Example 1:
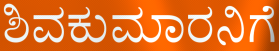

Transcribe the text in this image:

ಶಿವಕುಮಾರನಿಗೆ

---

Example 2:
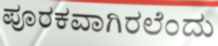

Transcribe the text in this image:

ಪೂರಕವಾಗಿರಲೆಂದು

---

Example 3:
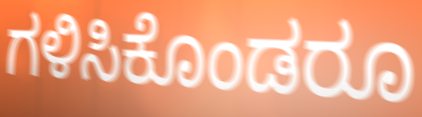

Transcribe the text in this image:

ಗಳಿಸಿಕೊಂಡರೂ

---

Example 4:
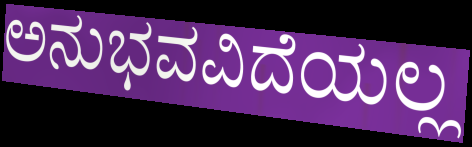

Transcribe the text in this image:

ಅನುಭವವಿದೆಯಲ್ಲ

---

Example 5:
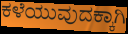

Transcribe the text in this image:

ಕಳೆಯುವುದಕ್ಕಾಗಿ